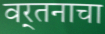
वर्तनाचा